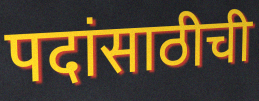
पदांसाठीची